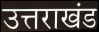
उत्तराखंड